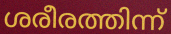
ശരീരത്തിന്ന്